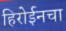
हिरोईनचा